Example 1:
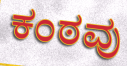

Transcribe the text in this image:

ಕಂಠವು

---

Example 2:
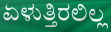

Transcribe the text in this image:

ಏಳುತ್ತಿರಲಿಲ್ಲ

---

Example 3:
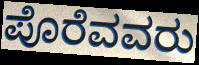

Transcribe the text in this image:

ಪೊರೆವವರು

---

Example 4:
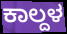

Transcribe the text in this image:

ಕಾಲ್ದಳ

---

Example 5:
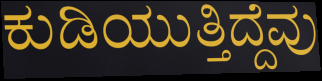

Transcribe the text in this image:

ಕುಡಿಯುತ್ತಿದ್ದೆವು